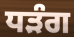
ਧੜੰਗ